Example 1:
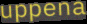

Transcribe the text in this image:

uppena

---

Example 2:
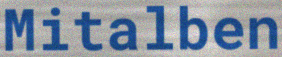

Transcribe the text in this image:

Mitalben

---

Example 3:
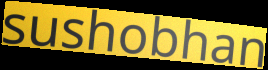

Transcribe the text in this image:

sushobhan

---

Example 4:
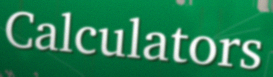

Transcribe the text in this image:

Calculators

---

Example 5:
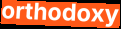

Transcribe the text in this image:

orthodoxy